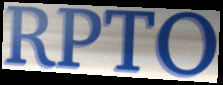
RPTO